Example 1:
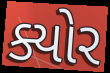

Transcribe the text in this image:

ક્યોર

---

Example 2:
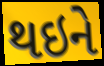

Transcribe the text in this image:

થઇને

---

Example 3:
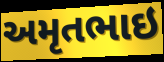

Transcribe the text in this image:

અમૃતભાઇ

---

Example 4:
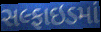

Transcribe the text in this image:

સલ્ફાઇડમાં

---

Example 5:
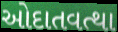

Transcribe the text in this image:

ઓદાતવત્થા